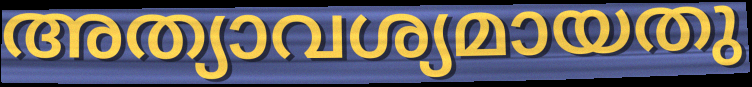
അത്യാവശ്യമായതു